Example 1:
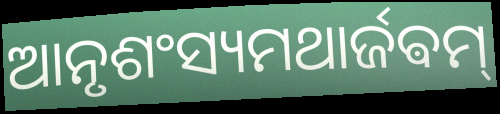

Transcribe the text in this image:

ଆନୃଶଂସ୍ୟମଥାର୍ଜଵମ୍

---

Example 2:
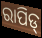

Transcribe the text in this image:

ରାପିଡ୍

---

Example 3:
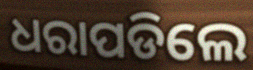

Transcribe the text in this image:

ଧରାପଡିଲେ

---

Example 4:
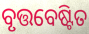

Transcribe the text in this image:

ବୃତ୍ତବେଷ୍ଟିତ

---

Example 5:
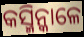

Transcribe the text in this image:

କସ୍ମିନ୍କାଳେ